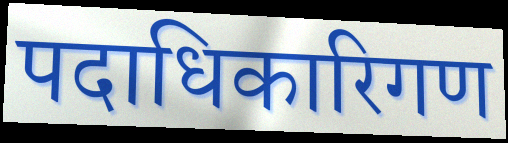
पदाधिकारिगण